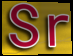
Sr